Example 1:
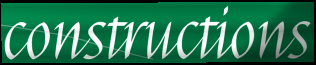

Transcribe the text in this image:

constructions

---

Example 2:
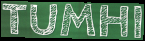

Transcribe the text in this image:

TUMHI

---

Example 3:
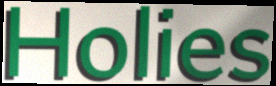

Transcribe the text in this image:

Holies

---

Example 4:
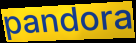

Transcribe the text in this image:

pandora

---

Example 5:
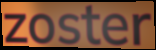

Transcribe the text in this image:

zoster